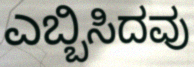
ಎಬ್ಬಿಸಿದವು